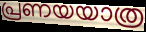
പ്രണയയാത്ര